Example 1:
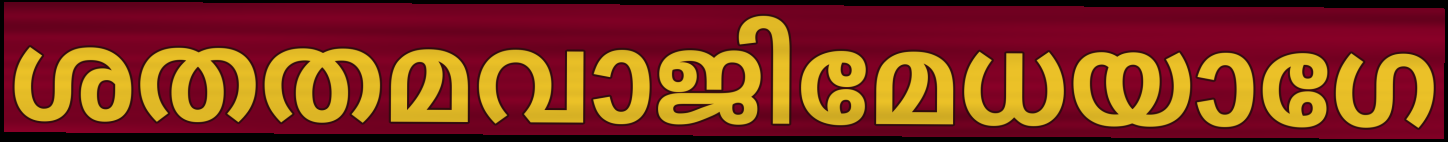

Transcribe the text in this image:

ശതതമവാജിമേധയാഗേ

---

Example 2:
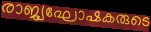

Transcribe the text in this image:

രാജ്യഘോഷകരുടെ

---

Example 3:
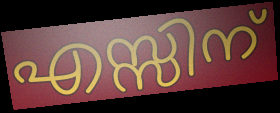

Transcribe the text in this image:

എസ്സിന്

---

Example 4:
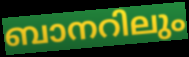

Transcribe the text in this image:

ബാനറിലും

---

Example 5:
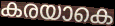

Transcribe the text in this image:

കരയാകെ